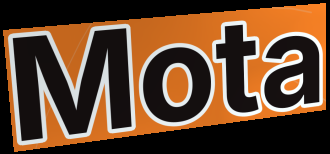
Mota